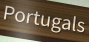
Portugals